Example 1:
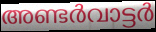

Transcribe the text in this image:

അണ്ടർവാട്ടർ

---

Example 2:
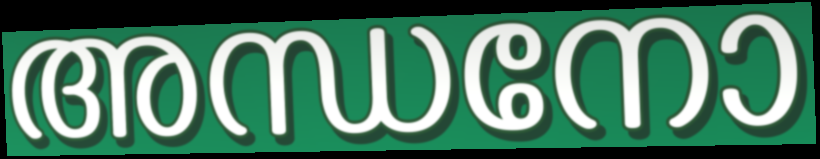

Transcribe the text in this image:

അന്ധനോ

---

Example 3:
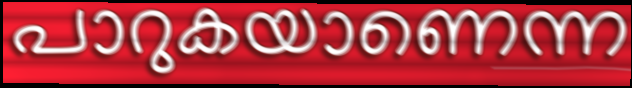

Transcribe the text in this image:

പാറുകയാണെന്ന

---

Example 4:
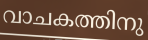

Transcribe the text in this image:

വാചകത്തിനു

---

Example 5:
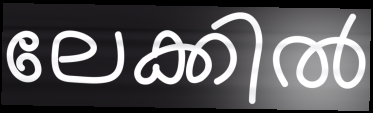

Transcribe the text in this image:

ലേക്കിൽ